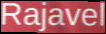
Rajavel